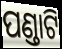
ପଣ୍ଡାଟି